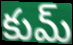
కుమ్